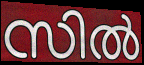
സിൽ